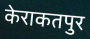
केराकतपुर